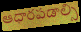
ఆధారపడాల్సి